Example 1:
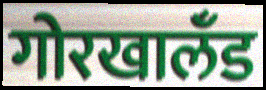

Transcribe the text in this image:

गोरखालॅंड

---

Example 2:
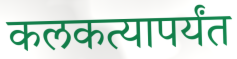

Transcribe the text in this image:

कलकत्यापर्यंत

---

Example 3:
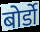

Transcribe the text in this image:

बोर्डो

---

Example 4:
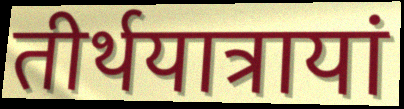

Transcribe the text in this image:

तीर्थयात्रायां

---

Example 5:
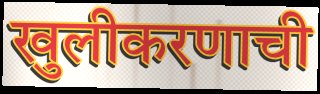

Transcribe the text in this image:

खुलीकरणाची